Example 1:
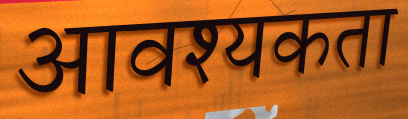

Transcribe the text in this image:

आवश्यकता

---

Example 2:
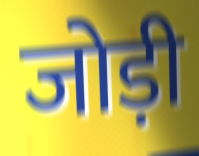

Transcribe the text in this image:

जोड़ी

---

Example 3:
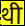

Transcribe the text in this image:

थी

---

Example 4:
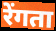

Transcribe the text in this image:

रेंगता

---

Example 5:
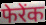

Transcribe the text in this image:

फेरेंक